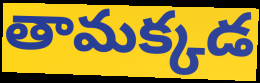
తామక్కడ